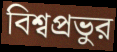
বিশ্বপ্রভুর